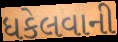
ધકેલવાની